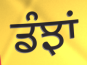
ਡੰਝਾਂ